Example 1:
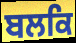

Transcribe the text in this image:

ਬਲਕਿ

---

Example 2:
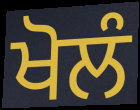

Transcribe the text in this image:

ਖੋਲੰ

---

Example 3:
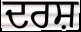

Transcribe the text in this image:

ਦਰਸ਼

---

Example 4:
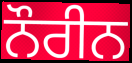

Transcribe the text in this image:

ਨੌਰੀਨ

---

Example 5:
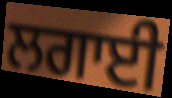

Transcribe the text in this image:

ਲਗਾਈ